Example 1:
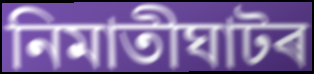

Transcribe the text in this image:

নিমাতীঘাটৰ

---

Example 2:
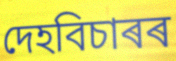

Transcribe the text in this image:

দেহবিচাৰৰ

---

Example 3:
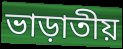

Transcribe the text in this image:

ভাড়াতীয়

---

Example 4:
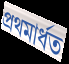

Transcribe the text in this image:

প্ৰথমাৰ্ধত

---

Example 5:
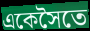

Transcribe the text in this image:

একেসৈতে